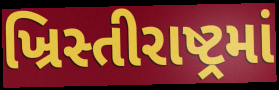
ખ્રિસ્તીરાષ્ટ્રમાં